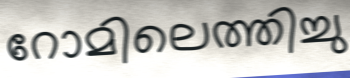
റോമിലെത്തിച്ചു